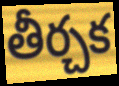
తీర్చక